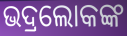
ଭଦ୍ରଲୋକଙ୍କ